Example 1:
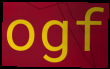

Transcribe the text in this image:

ogf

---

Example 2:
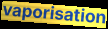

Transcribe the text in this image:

vaporisation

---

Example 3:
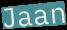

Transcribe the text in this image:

Jaan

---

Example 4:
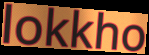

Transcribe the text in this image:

lokkho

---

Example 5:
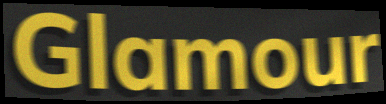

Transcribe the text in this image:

Glamour